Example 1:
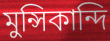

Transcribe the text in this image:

মুন্সিকান্দি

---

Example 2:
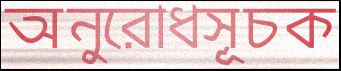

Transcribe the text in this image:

অনুরোধসূচক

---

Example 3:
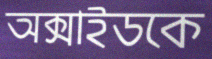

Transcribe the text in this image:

অক্সাইডকে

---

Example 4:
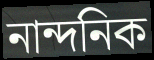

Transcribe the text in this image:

নান্দনিক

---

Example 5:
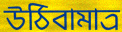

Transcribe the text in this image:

উঠিবামাত্র